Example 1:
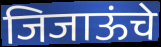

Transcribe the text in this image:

जिजाऊंचे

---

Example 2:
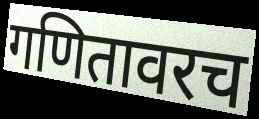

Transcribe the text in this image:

गणितावरच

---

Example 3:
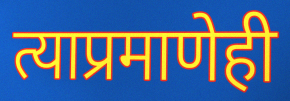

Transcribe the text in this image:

त्याप्रमाणेही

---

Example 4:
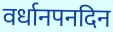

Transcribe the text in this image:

वर्धानपनदिन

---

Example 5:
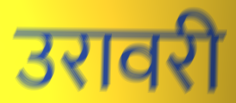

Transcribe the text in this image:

उरावरी